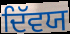
ਦਿੱਵਯ